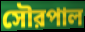
সৌরপাল